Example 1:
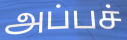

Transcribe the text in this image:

அப்பச்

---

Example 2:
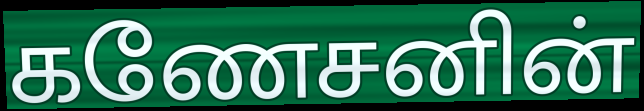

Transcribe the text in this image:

கணேசனின்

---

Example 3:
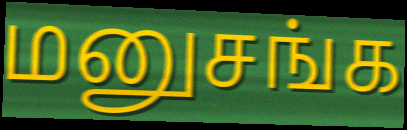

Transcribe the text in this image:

மனுசங்க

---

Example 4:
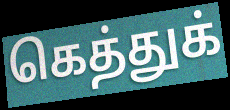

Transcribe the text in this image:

கெத்துக்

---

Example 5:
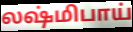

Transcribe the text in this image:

லஷ்மிபாய்